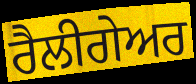
ਰੈਲੀਗੇਅਰ